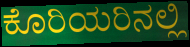
ಕೊರಿಯರಿನಲ್ಲಿ